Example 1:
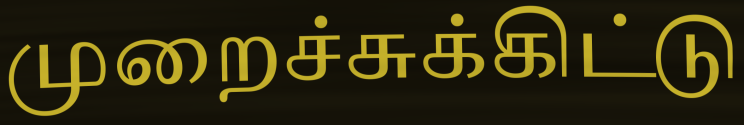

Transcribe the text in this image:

முறைச்சுக்கிட்டு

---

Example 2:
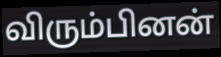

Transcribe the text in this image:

விரும்பினன்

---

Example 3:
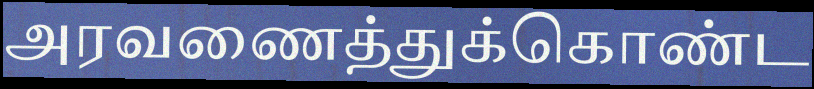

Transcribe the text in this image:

அரவணைத்துக்கொண்ட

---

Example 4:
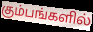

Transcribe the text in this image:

கும்பங்களில்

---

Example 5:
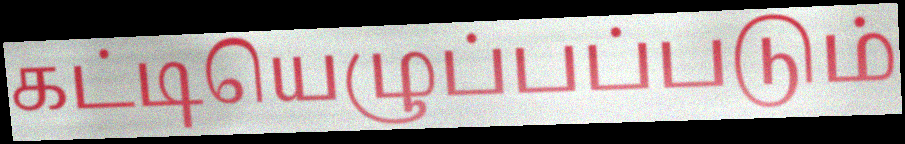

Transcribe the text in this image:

கட்டியெழுப்பப்படும்